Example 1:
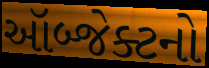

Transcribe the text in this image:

ઑબ્જેક્ટનો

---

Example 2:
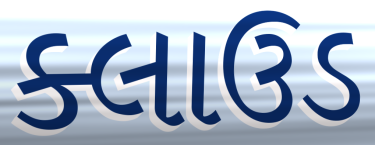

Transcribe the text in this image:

ક્લાઉડ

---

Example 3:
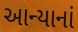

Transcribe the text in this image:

આન્યાનાં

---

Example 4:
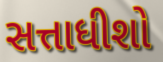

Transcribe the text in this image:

સત્તાધીશો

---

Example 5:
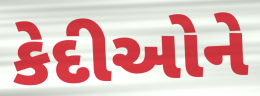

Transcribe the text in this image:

કેદીઓને